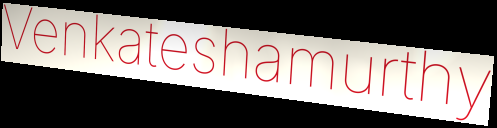
Venkateshamurthy